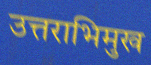
उत्तराभिमुख